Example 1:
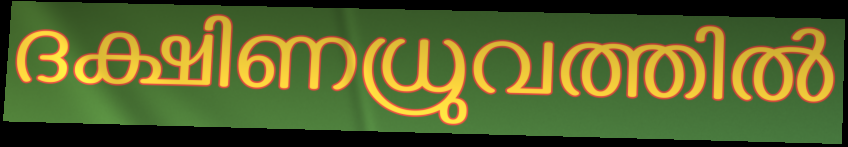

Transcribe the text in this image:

ദക്ഷിണധ്രുവത്തിൽ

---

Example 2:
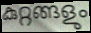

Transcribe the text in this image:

കുറ്റങ്ങളും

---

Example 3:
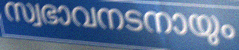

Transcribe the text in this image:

സ്വഭാവനടനായും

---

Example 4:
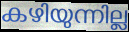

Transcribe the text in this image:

കഴിയുന്നില്ല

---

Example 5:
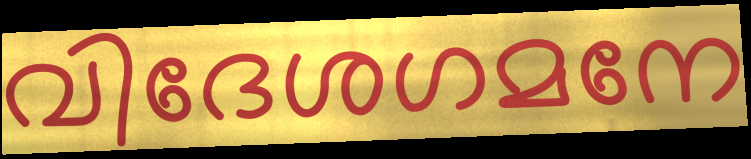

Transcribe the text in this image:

വിദേശഗമനേ